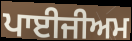
ਪਾਈਜੀਅਮ